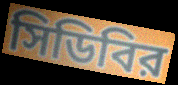
সিডিবির